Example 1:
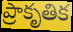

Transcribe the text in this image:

ప్రాకృతిక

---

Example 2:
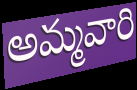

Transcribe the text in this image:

అమ్మవారి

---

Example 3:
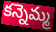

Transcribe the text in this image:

కన్నెమ్మ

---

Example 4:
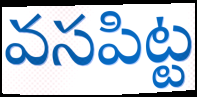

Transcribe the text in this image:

వసపిట్ట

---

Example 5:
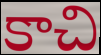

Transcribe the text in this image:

కాచి